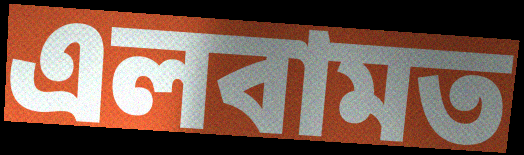
এলবামত